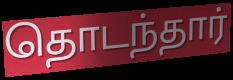
தொடந்தார்